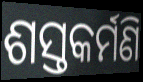
ଶସ୍ତକର୍ମଣି